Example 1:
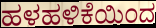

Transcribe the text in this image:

ಹಳಹಳಿಕೆಯಿಂದ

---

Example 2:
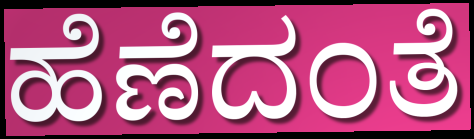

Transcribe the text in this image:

ಹೆಣೆದಂತೆ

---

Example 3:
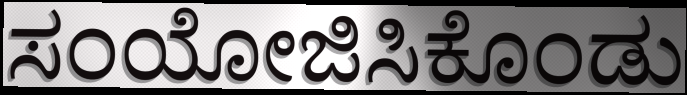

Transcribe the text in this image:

ಸಂಯೋಜಿಸಿಕೊಂಡು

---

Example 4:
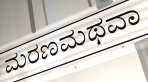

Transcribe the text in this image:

ಮರಣಮಥವಾ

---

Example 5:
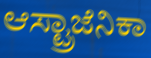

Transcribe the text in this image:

ಆಸ್ಟ್ರಾಜೆನಿಕಾ